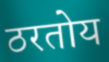
ठरतोय